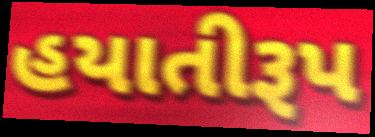
હયાતીરૂપ